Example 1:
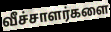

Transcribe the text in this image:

வீச்சாளர்களை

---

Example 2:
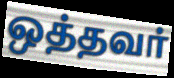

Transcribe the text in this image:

ஒத்தவர்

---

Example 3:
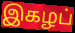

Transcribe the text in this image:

இகழப்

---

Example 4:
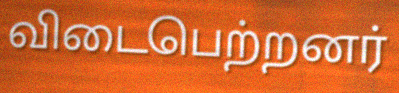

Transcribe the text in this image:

விடைபெற்றனர்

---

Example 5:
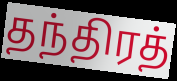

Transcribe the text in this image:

தந்திரத்